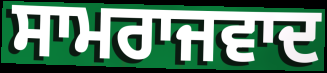
ਸਾਮਰਾਜਵਾਦ